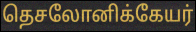
தெசலோனிக்கேயர்